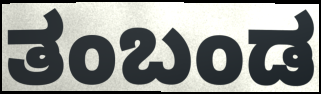
ತಂಬಂಡ